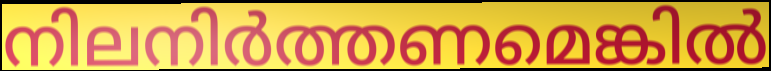
നിലനിർത്തണമെങ്കിൽ